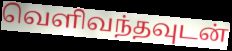
வெளிவந்தவுடன்